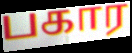
பகார